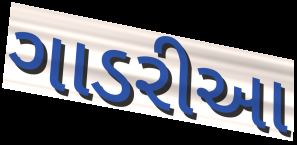
ગાડરીઆ